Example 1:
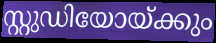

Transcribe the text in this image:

സ്റ്റുഡിയോയ്ക്കും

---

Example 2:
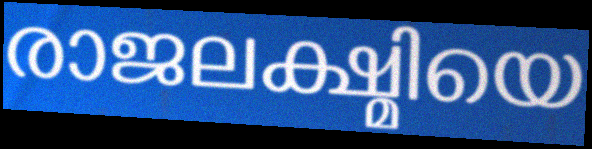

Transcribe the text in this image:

രാജലക്ഷ്മിയെ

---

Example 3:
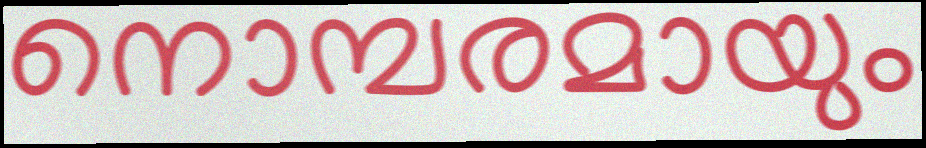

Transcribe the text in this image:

നൊമ്പരമായും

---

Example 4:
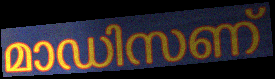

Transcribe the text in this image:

മാഡിസണ്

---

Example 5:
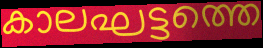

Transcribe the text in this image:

കാലഘട്ടത്തെ